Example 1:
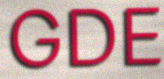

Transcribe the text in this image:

GDE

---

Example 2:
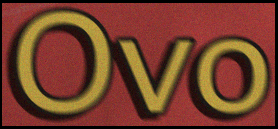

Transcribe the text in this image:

Ovo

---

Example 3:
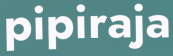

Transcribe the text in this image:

pipiraja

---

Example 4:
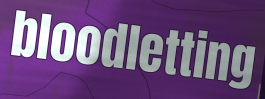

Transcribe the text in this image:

bloodletting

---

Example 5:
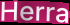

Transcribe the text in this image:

Herra